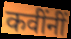
कवींनीं